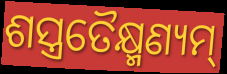
ଶସ୍ତ୍ରତୈକ୍ଷ୍ମଣ୍ୟମ୍